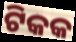
ଟିକକ